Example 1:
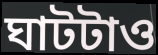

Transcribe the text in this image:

ঘাটটাও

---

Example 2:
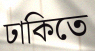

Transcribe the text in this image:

ঢাকিতে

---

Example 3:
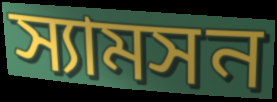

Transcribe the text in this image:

স্যামসন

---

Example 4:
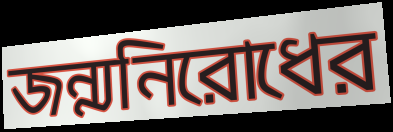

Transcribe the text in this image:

জন্মনিরোধের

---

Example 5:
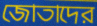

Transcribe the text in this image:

জোতাদের